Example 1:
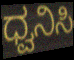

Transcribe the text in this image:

ಧ್ವನಿಸಿ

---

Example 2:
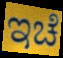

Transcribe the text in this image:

ಇಚೆ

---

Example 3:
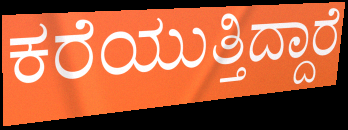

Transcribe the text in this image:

ಕರೆಯುತ್ತಿದ್ದಾರೆ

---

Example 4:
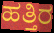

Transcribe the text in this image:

ಹತ್ತಿರ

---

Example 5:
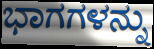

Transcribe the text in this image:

ಭಾಗಗಳನ್ನು